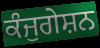
ਕੰਜੁਗੇਸ਼ਨ